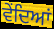
ਵੇਂਦਿਆਂ